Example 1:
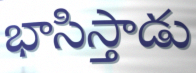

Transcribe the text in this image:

భాసిస్తాడు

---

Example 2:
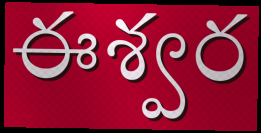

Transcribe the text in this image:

ఈశ్వర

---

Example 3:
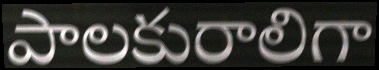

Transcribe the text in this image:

పాలకురాలిగా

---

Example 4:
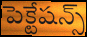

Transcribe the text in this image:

పెక్టేషన్స్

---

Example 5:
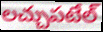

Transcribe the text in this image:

లచ్చుపటేల్